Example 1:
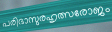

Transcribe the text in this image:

പരിഭാസുരഹൃത്സരോജം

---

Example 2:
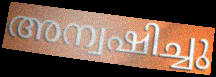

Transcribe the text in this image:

അന്വഷിച്ചു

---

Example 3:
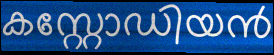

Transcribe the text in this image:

കസ്റ്റോഡിയൻ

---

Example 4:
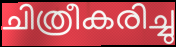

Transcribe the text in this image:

ചിത്രീകരിച്ചു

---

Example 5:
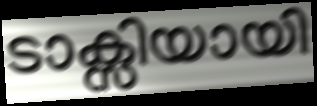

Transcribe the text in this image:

ടാക്സിയായി